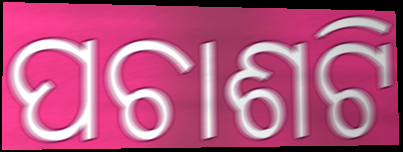
ପଚାଶଟି